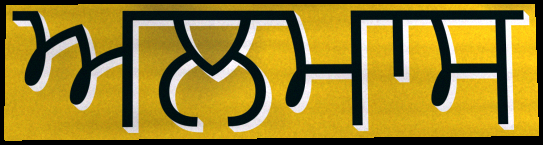
ਅਲਮਾਸ